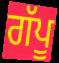
ਗੱਪੂ